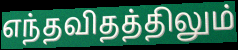
எந்தவிதத்திலும்